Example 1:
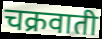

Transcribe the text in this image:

चक्रवाती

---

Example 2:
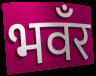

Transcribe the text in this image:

भवँर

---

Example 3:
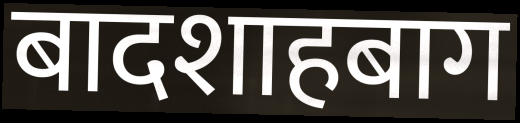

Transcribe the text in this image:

बादशाहबाग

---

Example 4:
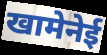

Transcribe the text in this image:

खामेनेई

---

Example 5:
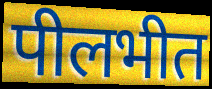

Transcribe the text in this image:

पीलभीत